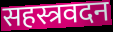
सहस्त्रवदन